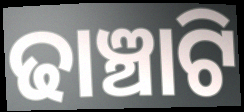
ଢାଞ୍ଚାଟି